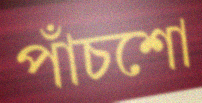
পাঁচশো